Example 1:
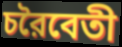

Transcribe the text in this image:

চরৈবেতী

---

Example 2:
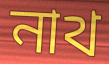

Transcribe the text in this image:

নাথ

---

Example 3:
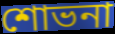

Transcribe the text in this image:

শোভনা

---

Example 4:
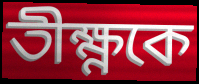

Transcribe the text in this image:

তীক্ষ্ণকে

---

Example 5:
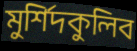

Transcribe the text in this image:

মুর্শিদকুলিব